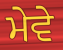
ਮੇਵੇ